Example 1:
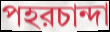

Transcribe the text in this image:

পহরচান্দা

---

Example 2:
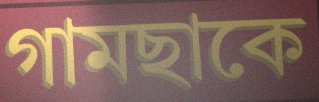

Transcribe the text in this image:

গামছাকে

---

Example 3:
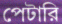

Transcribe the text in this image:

পেটারি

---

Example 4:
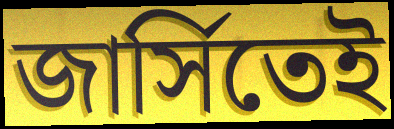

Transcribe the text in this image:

জার্সিতেই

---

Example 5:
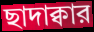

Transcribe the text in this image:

ছাদাক্বার